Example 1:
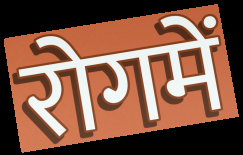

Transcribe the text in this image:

रोगमें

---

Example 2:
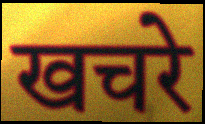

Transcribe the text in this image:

खचरे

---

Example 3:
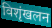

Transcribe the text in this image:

विशृंखलन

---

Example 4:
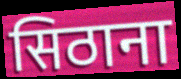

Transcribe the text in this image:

सिठाना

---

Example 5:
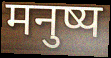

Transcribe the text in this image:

मनुष्‍य